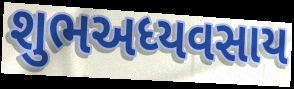
શુભઅધ્યવસાય